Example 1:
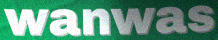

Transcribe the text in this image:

wanwas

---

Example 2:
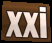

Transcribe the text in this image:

xxi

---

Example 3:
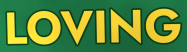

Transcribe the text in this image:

LOVING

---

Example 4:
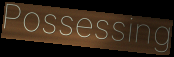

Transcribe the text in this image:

Possessing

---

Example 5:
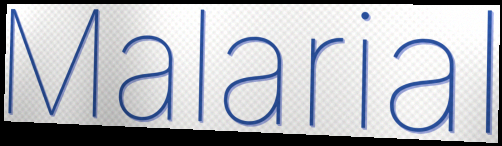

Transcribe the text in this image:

Malarial